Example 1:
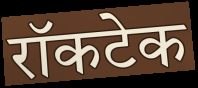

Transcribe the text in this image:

रॉकटेक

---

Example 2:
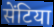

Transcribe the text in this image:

सेंटिया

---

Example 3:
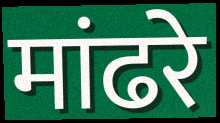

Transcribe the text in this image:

मांढरे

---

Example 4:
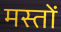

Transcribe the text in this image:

मस्तों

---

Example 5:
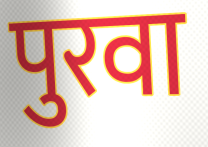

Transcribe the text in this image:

पुरवा